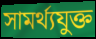
সামর্থ্যযুক্ত